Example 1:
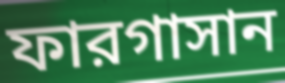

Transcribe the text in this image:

ফারগাসান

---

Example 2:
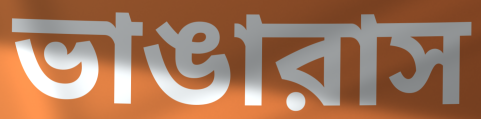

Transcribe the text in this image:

ভাঙারাস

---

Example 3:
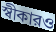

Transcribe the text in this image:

স্বীকারও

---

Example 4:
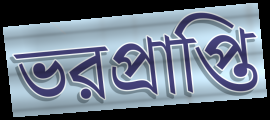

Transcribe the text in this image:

ভরপ্রাপ্তি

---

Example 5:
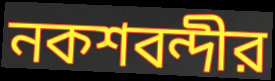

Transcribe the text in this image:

নকশবন্দীর